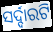
ସର୍ଦ୍ଦାରଟି